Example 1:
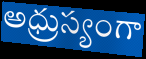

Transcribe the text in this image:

అధ్రుస్యంగా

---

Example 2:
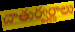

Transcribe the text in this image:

చాతుర్వర్ణాలు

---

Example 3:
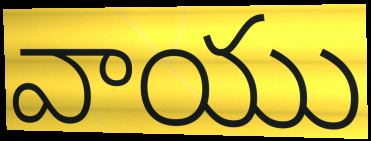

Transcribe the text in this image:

వాయు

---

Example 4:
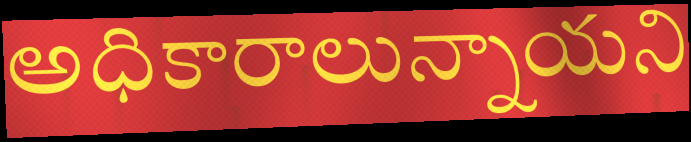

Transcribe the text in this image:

అధికారాలున్నాయని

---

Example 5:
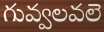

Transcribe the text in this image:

గువ్వలవలె